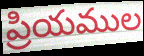
ప్రియముల